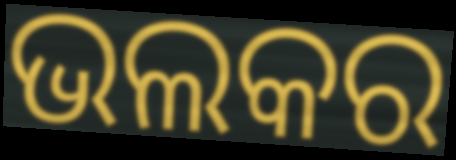
ଭଲକର